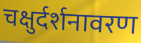
चक्षुर्दर्शनावरण